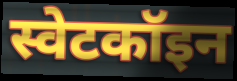
स्वेटकॉइन